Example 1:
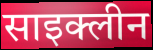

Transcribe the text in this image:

साइक्लीन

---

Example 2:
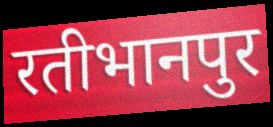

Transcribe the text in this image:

रतीभानपुर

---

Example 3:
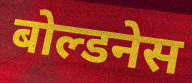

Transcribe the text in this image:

बोल्डनेस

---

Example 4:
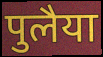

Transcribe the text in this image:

पुलैया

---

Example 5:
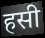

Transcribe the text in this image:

हसी